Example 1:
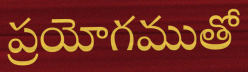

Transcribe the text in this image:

ప్రయోగముతో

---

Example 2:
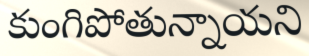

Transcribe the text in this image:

కుంగిపోతున్నాయని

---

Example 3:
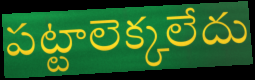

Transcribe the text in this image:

పట్టాలెక్కలేదు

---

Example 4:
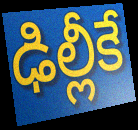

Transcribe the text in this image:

ఢిల్లీకే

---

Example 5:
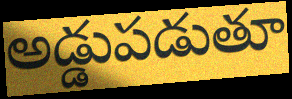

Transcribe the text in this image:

అడ్డుపడుతూ